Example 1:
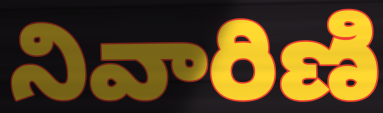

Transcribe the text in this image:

నివారిణి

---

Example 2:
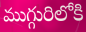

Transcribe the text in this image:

ముగ్గురిలోకి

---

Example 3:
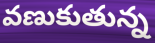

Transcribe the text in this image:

వణుకుతున్న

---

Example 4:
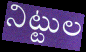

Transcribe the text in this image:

నిట్టుల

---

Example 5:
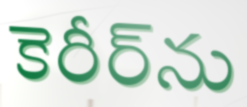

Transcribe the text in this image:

కెరీర్‌ను